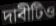
দাবীটিও